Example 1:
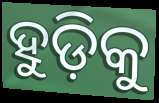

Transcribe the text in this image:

ହୁଡ଼ିକୁ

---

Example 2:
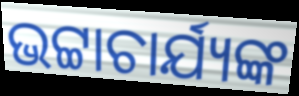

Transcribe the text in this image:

ଭଟ୍ଟାଚାର୍ଯ୍ୟଙ୍କ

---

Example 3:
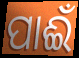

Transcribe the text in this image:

ପାଈଁ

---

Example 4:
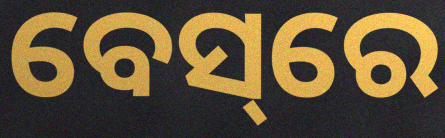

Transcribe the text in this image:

ବେସ୍‌ରେ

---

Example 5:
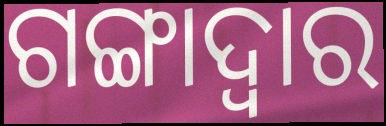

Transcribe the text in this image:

ଗଙ୍ଗାଦ୍ୱାର